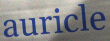
auricle